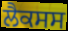
ਲੈਕਸਸ